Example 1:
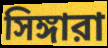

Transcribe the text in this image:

সিঙ্গারা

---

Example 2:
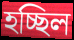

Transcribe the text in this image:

হচ্ছিল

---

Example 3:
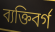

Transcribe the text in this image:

ব্যক্তিবর্গ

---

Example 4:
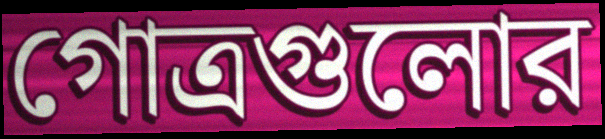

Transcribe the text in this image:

গোত্রগুলোর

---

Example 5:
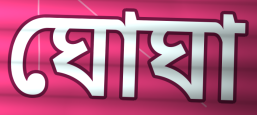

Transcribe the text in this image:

ঘোঘা